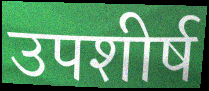
उपशीर्ष